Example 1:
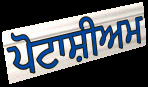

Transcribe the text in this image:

ਪੋਟਾਸ਼ੀਅਮ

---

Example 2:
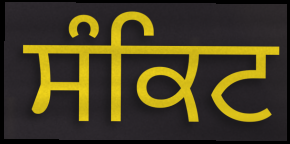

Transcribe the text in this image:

ਸੰਕਿਟ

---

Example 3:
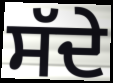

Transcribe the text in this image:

ਸੱਦੇ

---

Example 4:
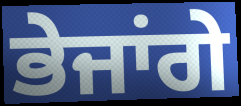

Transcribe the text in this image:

ਭੇਜਾਂਗੇ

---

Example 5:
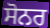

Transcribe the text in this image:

ਸੋਨਰ